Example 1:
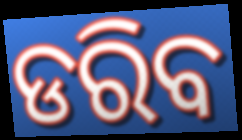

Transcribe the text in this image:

ଡରିବ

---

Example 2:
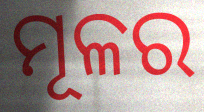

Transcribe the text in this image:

ମୂଳର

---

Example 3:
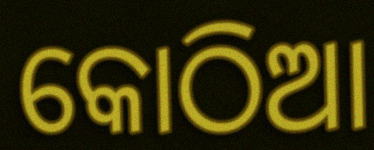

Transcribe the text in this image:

କୋଠିଆ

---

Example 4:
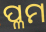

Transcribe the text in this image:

ପ୍ଳମ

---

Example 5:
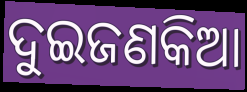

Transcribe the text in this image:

ଦୁଇଜଣକିଆ